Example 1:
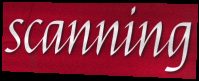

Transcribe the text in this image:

scanning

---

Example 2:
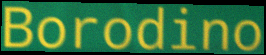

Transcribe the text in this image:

Borodino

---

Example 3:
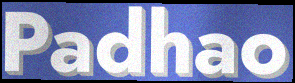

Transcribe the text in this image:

Padhao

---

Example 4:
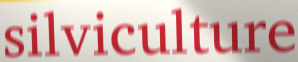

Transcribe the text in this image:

silviculture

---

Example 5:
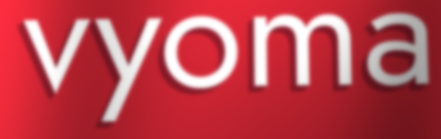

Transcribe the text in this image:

vyoma